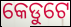
କେଡୁଟେ